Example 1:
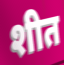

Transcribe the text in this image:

शीत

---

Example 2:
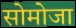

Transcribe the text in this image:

सोमोजा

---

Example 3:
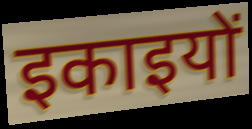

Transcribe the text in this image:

इकाइयों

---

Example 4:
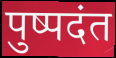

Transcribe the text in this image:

पुष्पदंत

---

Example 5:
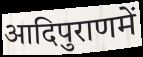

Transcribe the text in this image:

आदिपुराणमें